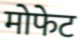
मोफेट